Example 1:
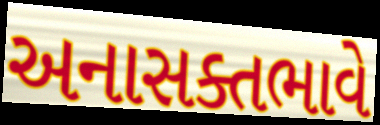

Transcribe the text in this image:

અનાસક્તભાવે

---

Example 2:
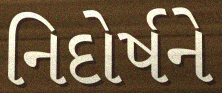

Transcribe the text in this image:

નિદોર્ષને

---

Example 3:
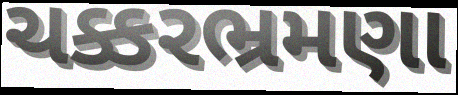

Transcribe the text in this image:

ચક્કરભ્રમણા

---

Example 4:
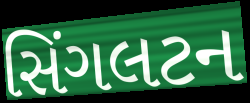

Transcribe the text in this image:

સિંગલટન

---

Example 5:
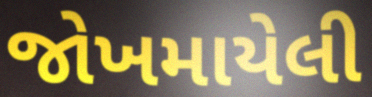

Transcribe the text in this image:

જોખમાયેલી